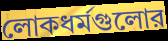
লোকধর্মগুলোর